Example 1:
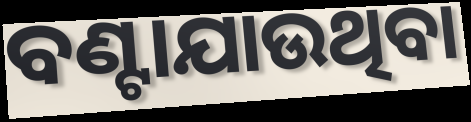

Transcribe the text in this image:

ବଣ୍ଟାଯାଉଥିବା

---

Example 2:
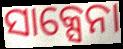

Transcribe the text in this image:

ସାକ୍ସେନା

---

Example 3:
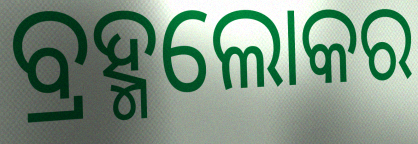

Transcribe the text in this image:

ବ୍ରହ୍ମଲୋକର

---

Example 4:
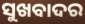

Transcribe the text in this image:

ସୁଖବାଦର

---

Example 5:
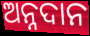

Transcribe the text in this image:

ଅନ୍ନଦାନ